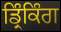
ਡ੍ਰਿੰਕਿੰਗ